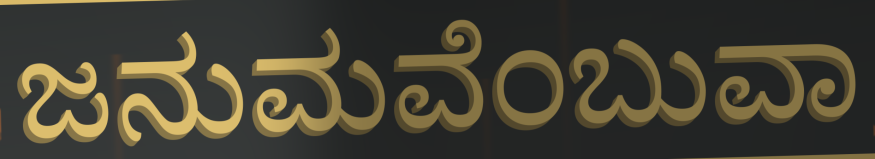
ಜನುಮವೆಂಬುವಾ